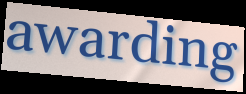
awarding